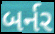
બર્નર